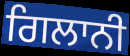
ਗਿਲਾਨੀ